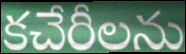
కచేరీలను